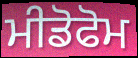
ਮੀਡੋਫੋਮ